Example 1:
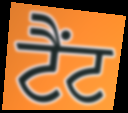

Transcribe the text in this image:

ਟੈਂਟ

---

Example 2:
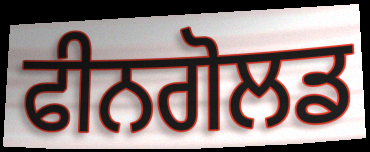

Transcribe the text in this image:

ਫੀਨਗੋਲਡ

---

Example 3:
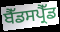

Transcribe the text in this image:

ਬੈੱਡਸਪ੍ਰੈੱਡ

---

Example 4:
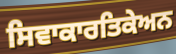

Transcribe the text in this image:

ਸਿਵਾਕਾਰਤਿਕੇਅਨ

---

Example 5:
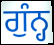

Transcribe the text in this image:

ਗੁੰਨ੍ਹ